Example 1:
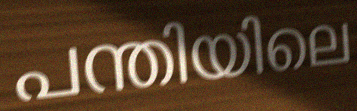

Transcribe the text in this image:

പന്തിയിലെ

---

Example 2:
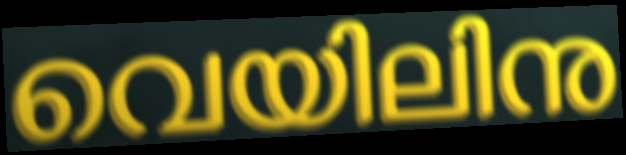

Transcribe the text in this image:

വെയിലിനു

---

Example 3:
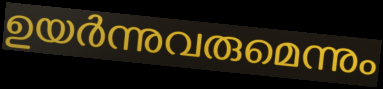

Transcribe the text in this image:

ഉയർന്നുവരുമെന്നും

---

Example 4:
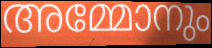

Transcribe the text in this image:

അമ്മോനും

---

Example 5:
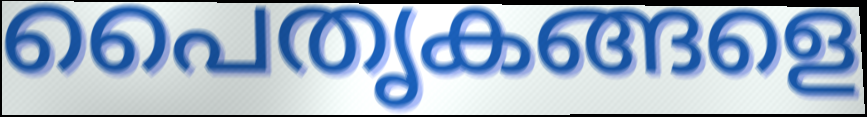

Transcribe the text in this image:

പൈതൃകങ്ങളെ